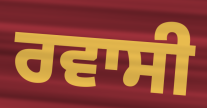
ਰਵਾਸੀ